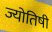
ज्योतिषी